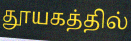
தூயகத்தில்